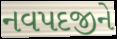
નવપદજીને